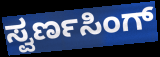
ಸ್ವರ್ಣಸಿಂಗ್